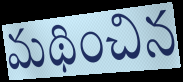
మథించిన